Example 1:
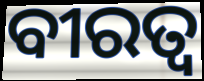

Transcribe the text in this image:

ବୀରତ୍ଵ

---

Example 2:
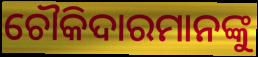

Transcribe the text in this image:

ଚୌକିଦାରମାନଙ୍କୁ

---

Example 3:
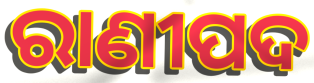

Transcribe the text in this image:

ରାଣୀପଦ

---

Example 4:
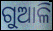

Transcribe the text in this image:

ଗୁଆଳି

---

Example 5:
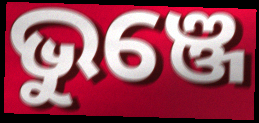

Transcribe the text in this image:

ଭୁଞ୍ଜେ